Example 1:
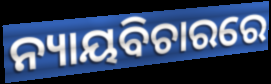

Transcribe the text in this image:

ନ୍ୟାୟବିଚାରରେ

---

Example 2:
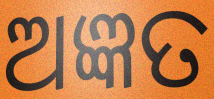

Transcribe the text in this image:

ଅଜ୍ଞତ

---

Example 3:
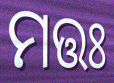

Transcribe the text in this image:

ମତ୍ତଃ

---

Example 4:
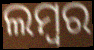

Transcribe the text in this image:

ଲମ୍ୱର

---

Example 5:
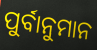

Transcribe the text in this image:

ପୁର୍ବାନୁମାନ